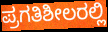
ಪ್ರಗತಿಶೀಲರಲ್ಲಿ